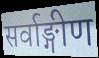
सर्वाङ्गीण